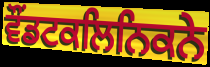
ਵੌਂਡਟਕਲਿਨਿਕਨੇ